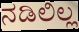
ನಡಿಲಿಲ್ಲ